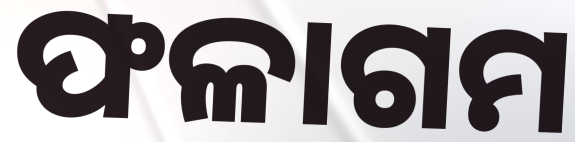
ଫଳାଗମ